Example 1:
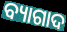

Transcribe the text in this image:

ବ୍ୟାଗାଦ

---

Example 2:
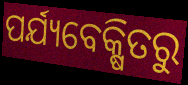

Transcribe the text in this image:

ପର୍ଯ୍ୟବେକ୍ଷିତରୁ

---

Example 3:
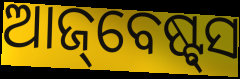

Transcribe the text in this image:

ଆଜ୍‌ବେଷ୍ଟ୍‌ସ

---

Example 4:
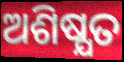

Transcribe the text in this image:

ଅଶିଷ୍ଯତ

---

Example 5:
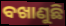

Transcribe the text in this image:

ବଖାଣୁଛି